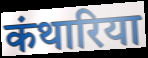
कंथारिया